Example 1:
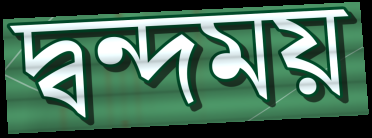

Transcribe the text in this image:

দ্বন্দময়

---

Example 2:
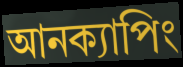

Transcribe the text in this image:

আনক্যাপিং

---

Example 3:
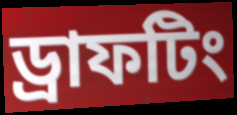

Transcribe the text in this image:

ড্রাফটিং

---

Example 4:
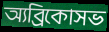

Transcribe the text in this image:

অ্যব্রিকোসভ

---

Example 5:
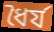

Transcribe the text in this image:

ধৈর্য